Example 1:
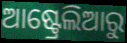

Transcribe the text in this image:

ଆଷ୍ଟ୍ରେଲିଆରୁ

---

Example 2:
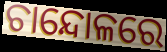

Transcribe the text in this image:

ଚାନ୍ଦୋଳରେ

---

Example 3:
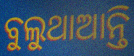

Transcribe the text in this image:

ବୁଲୁଥାଆନ୍ତି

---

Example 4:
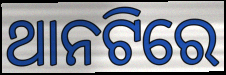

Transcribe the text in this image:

ଥାନଟିରେ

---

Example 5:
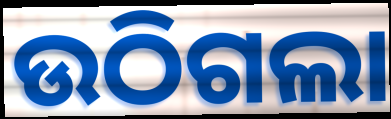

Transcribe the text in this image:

ଉଠିଗଲା